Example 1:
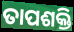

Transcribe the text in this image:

ତାପଶକ୍ତି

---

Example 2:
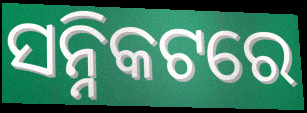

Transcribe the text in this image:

ସନ୍ନିକଟରେ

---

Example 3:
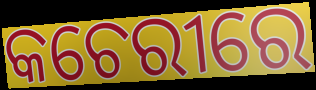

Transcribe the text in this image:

କଚେରୀରେ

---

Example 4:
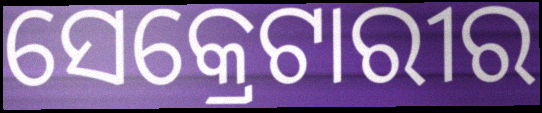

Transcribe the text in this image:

ସେକ୍ରେଟାରୀର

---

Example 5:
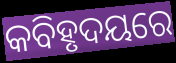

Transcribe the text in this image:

କବିହୃଦୟରେ